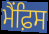
ਮੈਂਫ਼ਿਸ